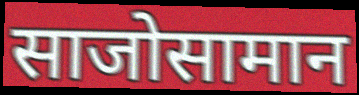
साजोसामान